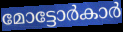
മോട്ടോർകാർ